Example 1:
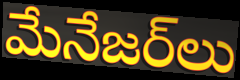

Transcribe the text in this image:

మేనేజర్‌లు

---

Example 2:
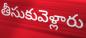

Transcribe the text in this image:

తీసుకువెళ్లారు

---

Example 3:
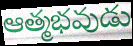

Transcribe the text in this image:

ఆత్మభవుడు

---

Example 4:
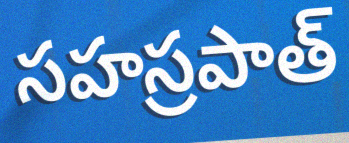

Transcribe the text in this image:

సహస్రపాత్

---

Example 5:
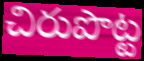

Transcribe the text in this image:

చిరుపొట్ట